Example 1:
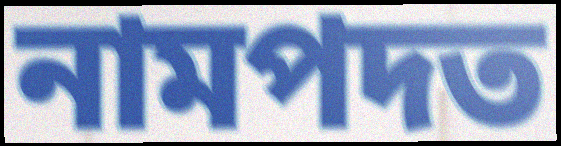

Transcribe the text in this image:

নামপদত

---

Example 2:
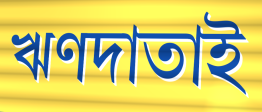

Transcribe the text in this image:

ঋণদাতাই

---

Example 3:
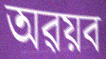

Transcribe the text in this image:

অৱয়ব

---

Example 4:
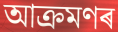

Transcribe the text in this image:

আক্ৰমণৰ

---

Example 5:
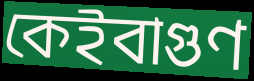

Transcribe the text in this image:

কেইবাগুণ